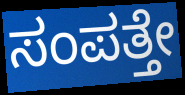
ಸಂಪತ್ತೇ